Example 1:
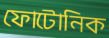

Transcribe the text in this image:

ফোটোনিক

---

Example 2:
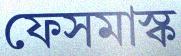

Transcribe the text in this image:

ফেসমাস্ক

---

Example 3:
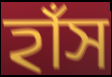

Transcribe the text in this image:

হাঁস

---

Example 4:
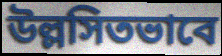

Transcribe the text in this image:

উল্লসিতভাবে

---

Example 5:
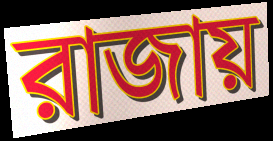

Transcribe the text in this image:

রাজায়